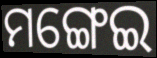
ମଙ୍ଗେଇ